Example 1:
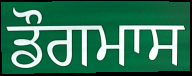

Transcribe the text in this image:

ਡੌਗਮਾਸ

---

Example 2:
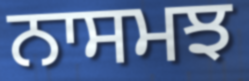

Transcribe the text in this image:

ਨਾਸਮਝ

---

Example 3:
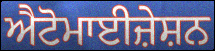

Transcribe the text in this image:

ਐਟੋਮਾਈਜ਼ੇਸ਼ਨ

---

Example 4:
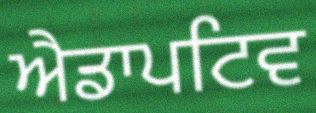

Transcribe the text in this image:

ਐਡਾਪਟਿਵ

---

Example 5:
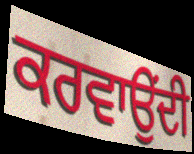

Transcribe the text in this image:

ਕਰਵਾਉਂਦੀ